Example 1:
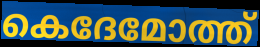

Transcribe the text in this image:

കെദേമോത്ത്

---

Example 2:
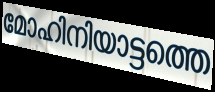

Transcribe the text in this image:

മോഹിനിയാട്ടത്തെ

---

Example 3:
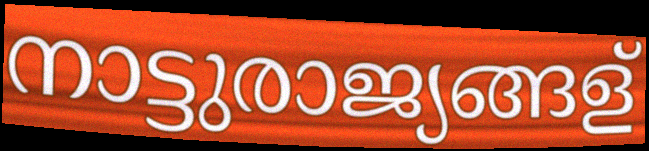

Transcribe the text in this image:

നാട്ടുരാജ്യങ്ങള്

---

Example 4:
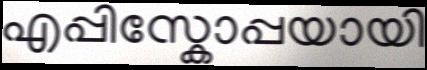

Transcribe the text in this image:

എപ്പിസ്കോപ്പയായി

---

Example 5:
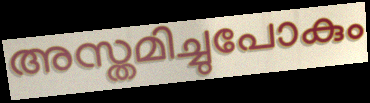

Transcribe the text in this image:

അസ്തമിച്ചുപോകും